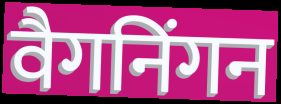
वैगनिंगन